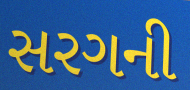
સરગની